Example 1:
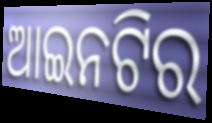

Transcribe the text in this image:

ଆଇନଟିର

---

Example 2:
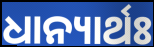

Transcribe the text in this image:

ଧାନ୍ୟାର୍ଥଃ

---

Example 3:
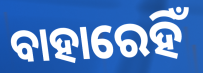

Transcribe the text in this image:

ବାହାରେହିଁ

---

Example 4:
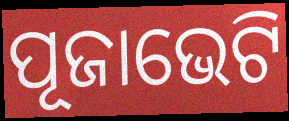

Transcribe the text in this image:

ପୂଜାଭେଟି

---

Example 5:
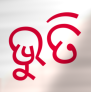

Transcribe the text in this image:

ଭୁତି